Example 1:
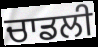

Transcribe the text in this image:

ਚਾਡਲੀ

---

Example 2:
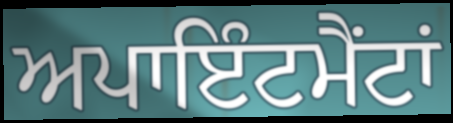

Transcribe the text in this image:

ਅਪਾਇੰਟਮੈਂਟਾਂ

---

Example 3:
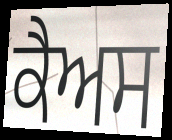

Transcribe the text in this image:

ਕੈਅਸ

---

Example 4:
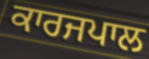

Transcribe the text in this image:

ਕਾਰਜਪਾਲ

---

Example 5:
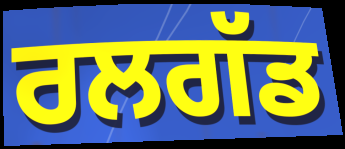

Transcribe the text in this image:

ਰਲਗੱਡ